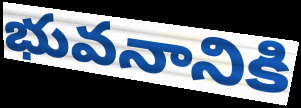
భువనానికి